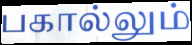
பகால்லும்